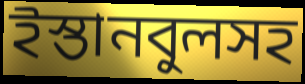
ইস্তানবুলসহ